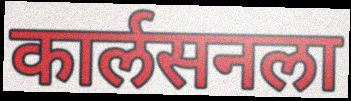
कार्लसनला